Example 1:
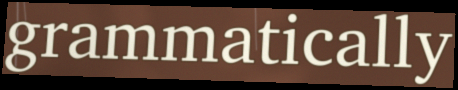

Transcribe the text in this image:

grammatically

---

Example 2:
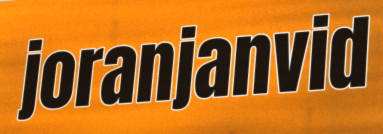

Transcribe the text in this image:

joranjanvid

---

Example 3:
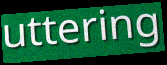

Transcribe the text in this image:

uttering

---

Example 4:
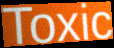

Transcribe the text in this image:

Toxic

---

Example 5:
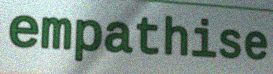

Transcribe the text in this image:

empathise